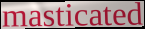
masticated